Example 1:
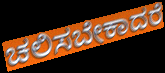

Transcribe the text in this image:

ಚಲಿಸಬೇಕಾದರೆ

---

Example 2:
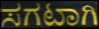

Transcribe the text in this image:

ಸಗಟಾಗಿ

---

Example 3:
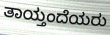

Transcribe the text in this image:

ತಾಯ್ತಂದೆಯರು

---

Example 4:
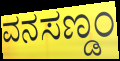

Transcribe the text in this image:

ವನಸಣ್ಡಂ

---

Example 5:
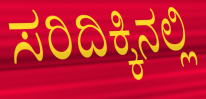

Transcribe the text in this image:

ಸರಿದಿಕ್ಕಿನಲ್ಲಿ